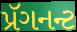
પ્રૅગનન્ટ